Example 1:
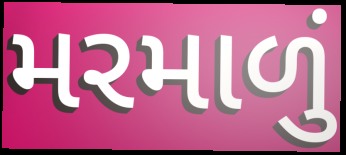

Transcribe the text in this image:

મરમાળું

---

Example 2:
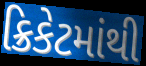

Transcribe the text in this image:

ક્રિકેટમાંથી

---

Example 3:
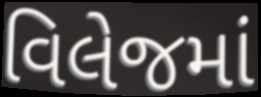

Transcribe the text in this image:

વિલેજમાં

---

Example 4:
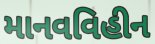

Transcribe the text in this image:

માનવવિહીન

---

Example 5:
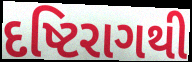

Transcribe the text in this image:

દષ્ટિરાગથી